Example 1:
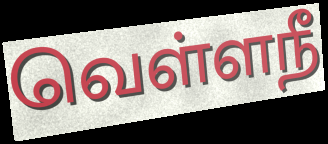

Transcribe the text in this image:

வெள்ளநீ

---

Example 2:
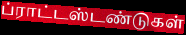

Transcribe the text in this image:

ப்ராட்டஸ்டண்டுகள்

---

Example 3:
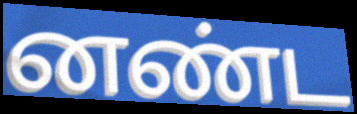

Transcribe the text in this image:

னண்ட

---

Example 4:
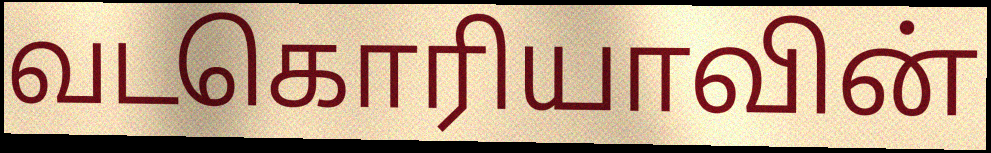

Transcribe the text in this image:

வடகொரியாவின்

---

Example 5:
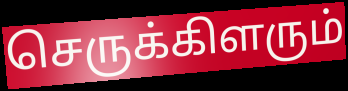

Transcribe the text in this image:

செருக்கிளரும்